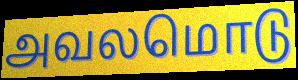
அவலமொடு